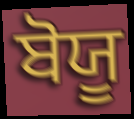
ਬੋਯੂ